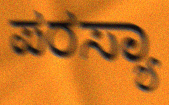
ಪರಸ್ಯಾ